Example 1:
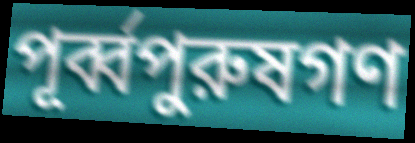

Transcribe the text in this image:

পূর্ব্বপুরুষগণ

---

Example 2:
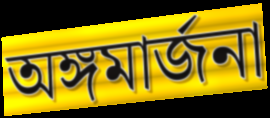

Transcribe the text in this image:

অঙ্গমার্জনা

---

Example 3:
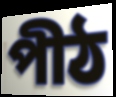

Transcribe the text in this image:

পীঠ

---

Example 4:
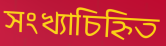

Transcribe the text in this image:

সংখ্যাচিহ্নিত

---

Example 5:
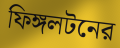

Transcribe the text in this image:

ফিঙ্গলটনের